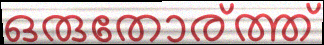
ഒരുതോര്ത്ത്